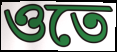
ওতে